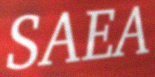
SAEA